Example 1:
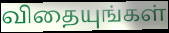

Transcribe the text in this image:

விதையுங்கள்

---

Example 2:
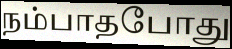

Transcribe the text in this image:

நம்பாதபோது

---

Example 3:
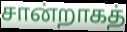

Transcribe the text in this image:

சான்றாகத்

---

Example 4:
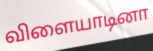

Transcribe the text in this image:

விளையாடினா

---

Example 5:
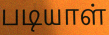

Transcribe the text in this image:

படியாள்